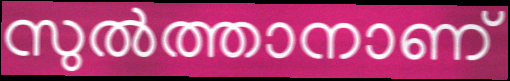
സുൽത്താനാണ്